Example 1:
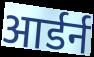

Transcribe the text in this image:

आर्डर्न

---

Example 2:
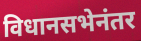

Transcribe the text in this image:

विधानसभेनंतर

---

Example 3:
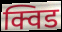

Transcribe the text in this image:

क्विड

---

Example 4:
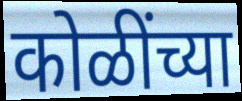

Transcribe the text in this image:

कोळींच्या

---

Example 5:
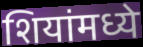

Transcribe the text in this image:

शियांमध्ये